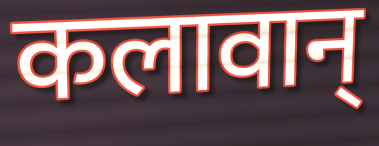
कलावान्